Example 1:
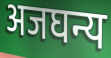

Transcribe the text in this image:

अजघन्य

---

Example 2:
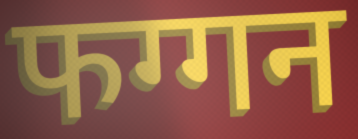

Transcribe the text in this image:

फग्गन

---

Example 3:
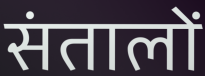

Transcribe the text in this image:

संतालों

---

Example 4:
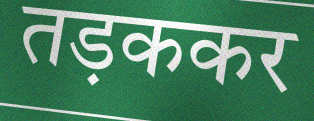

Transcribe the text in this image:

तड़ककर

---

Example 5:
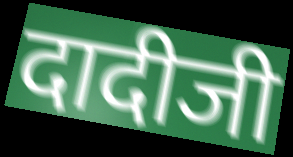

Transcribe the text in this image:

दादीजी